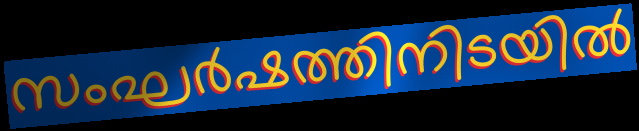
സംഘർഷത്തിനിടയിൽ